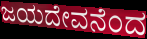
ಜಯದೇವನೆಂದ